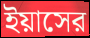
ইয়াসের